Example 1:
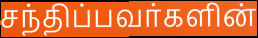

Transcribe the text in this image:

சந்திப்பவர்களின்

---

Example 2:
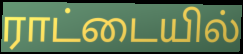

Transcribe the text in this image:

ராட்டையில்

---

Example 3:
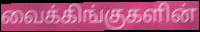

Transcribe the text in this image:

வைக்கிங்குகளின்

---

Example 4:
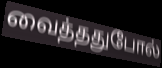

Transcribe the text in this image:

வைத்ததுபோல்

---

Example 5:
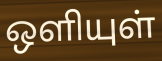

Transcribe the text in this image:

ஒளியுள்